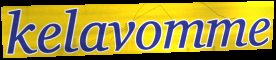
kelavomme